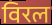
विरल